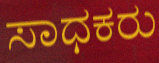
ಸಾಧಕರು